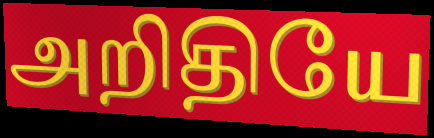
அறிதியே